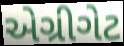
એગ્રીગેટ